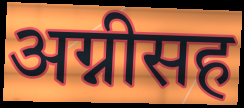
अग्नीसह